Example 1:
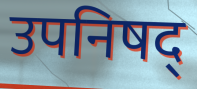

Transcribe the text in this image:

उपनिषद्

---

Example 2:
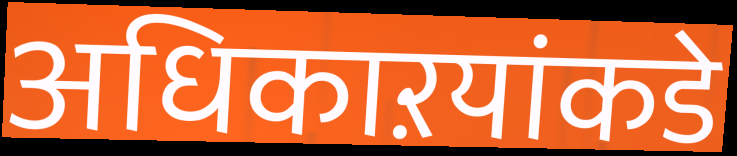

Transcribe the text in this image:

अधिकाऱयांकडे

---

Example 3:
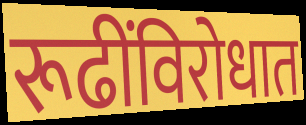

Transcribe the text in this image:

रूढींविरोधात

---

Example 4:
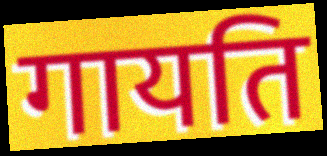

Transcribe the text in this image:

गायति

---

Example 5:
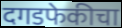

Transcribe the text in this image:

दगडफेकीचा